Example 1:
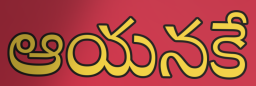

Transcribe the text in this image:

ఆయనకే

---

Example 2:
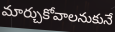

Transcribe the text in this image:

మార్చుకోవాలనుకునే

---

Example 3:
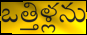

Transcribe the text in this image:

ఒత్తిళ్లను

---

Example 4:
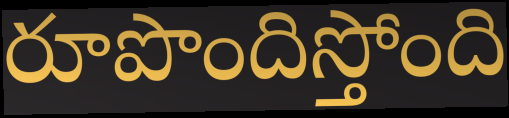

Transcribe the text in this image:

రూపొందిస్తోంది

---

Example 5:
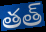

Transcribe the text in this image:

తత్